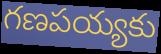
గణపయ్యకు